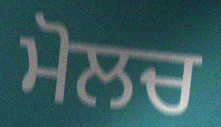
ਮੋਲਚ